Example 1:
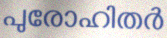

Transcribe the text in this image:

പുരോഹിതർ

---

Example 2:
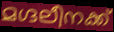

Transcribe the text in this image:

മഗ്ദലീനക്ക്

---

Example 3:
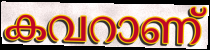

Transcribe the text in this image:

കവറാണ്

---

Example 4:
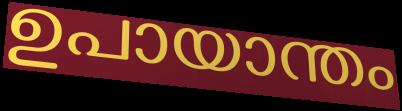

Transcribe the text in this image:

ഉപായാന്തം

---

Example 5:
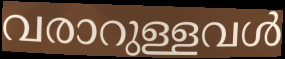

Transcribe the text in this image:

വരാറുള്ളവൾ